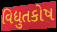
વિદ્યુતકોષ